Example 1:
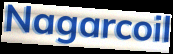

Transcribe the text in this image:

Nagarcoil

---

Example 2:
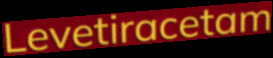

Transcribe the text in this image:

Levetiracetam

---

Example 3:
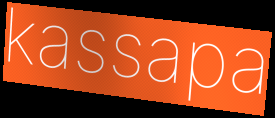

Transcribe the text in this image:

kassapa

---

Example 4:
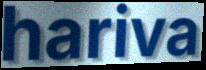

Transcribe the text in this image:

hariva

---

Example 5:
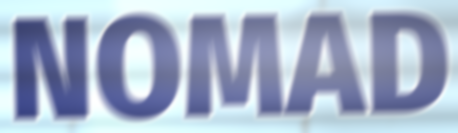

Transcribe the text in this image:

NOMAD